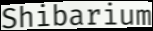
Shibarium